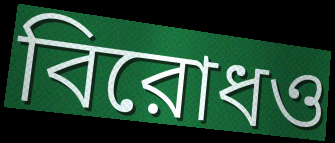
বিরোধও